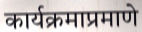
कार्यक्रमाप्रमाणे